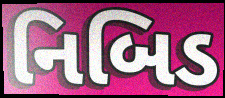
નિબિડ